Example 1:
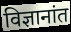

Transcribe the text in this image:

विज्ञानांत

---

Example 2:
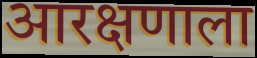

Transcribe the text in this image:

आरक्षणाला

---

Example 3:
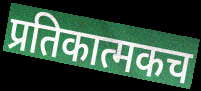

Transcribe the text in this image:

प्रतिकात्मकच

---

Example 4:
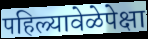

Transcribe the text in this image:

पहिल्यावेळेपेक्षा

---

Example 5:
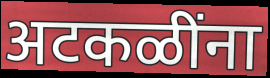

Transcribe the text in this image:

अटकळींना